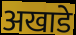
अखाडे